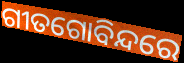
ଗୀତଗୋବିନ୍ଦରେ